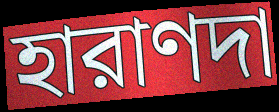
হারাণদা